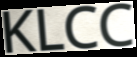
KLCC